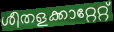
ശീതളക്കാറ്റേറ്റ്